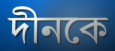
দীনকে